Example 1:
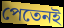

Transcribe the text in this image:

পেতেনই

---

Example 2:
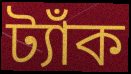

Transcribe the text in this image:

ট্যাঁক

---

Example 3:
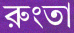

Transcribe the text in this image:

রুংতা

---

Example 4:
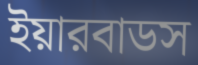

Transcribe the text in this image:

ইয়ারবাডস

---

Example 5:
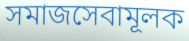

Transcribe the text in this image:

সমাজসেবামূলক